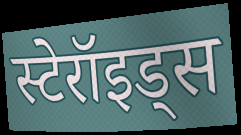
स्टेरॉइड्स